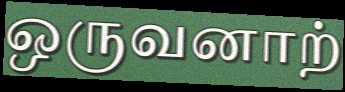
ஒருவனாற்